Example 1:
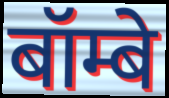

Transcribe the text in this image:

बॉम्बे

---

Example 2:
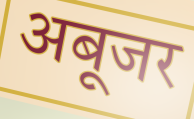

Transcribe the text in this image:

अबूजर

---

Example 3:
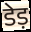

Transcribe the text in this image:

डेड़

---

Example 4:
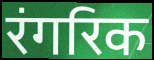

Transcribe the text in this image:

रंगरिक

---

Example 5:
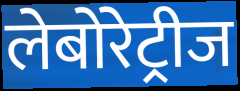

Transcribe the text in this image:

लेबोरेट्रीज